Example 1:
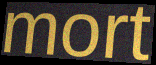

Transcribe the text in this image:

mort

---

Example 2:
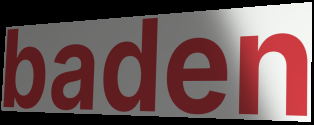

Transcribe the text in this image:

baden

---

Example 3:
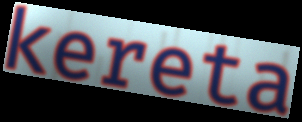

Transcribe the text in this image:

kereta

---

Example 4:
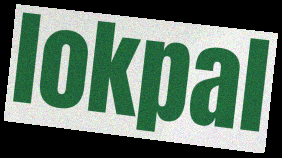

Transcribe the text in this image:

lokpal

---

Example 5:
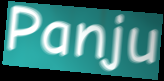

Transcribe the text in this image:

Panju